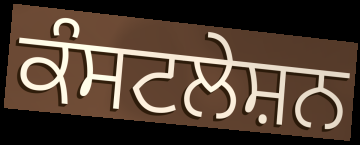
ਕੰਸਟਲੇਸ਼ਨ